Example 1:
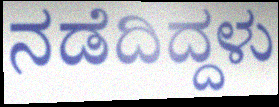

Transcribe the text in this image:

ನಡೆದಿದ್ದಳು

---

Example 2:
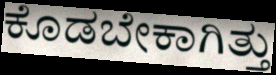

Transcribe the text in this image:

ಕೊಡಬೇಕಾಗಿತ್ತು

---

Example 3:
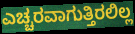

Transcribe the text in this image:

ಎಚ್ಚರವಾಗುತ್ತಿರಲಿಲ್ಲ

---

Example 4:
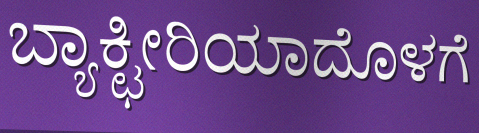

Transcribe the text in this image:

ಬ್ಯಾಕ್ಟೀರಿಯಾದೊಳಗೆ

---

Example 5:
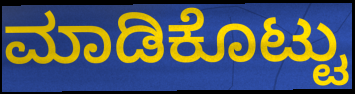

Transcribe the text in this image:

ಮಾಡಿಕೊಟ್ಟು